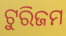
ଟୁରିଜମ